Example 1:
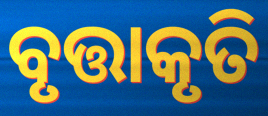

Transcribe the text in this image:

ବୃତ୍ତାକୃତି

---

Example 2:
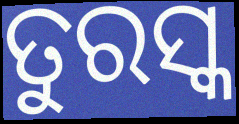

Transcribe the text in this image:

ତୁରସ୍କ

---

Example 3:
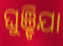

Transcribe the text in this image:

ଘୁଞ୍ଚିଯା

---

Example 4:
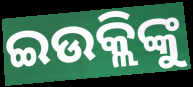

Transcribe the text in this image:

ଇଉକ୍ଲିଙ୍କୁ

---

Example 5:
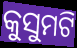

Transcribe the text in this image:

କୁସୁମଟି